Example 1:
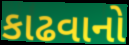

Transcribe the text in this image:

કાઢવાનો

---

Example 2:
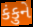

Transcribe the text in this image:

કંકુને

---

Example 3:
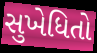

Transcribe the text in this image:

સુખેધિતો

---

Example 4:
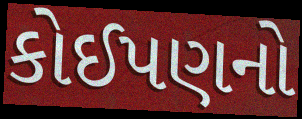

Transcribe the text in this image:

કોઈપણનો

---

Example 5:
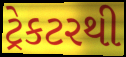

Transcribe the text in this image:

ટ્રેકટરથી